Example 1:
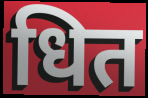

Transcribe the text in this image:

धित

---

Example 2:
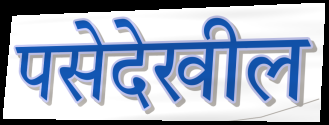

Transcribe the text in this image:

पसेदेखील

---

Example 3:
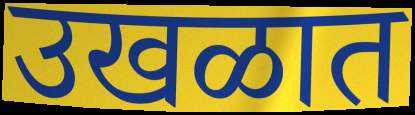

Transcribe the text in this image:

उखळात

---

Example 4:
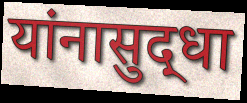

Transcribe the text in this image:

यांनासुद्धा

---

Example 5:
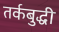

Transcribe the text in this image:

तर्कबुद्धी